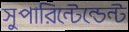
সুপারিন্টেন্ডেন্ট